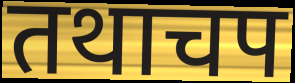
तथाचप